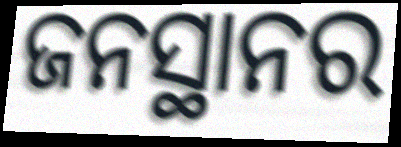
ଜନସ୍ଥାନର